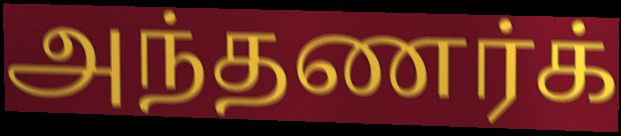
அந்தணர்க்